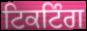
ਟਿਕਟਿੰਗ